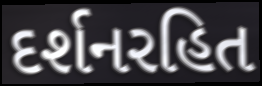
દર્શનરહિત